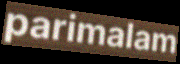
parimalam